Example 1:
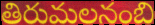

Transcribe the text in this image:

తిరుమలనంబి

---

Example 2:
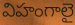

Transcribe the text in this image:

విహంగాలై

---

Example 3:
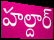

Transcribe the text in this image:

హల్దార్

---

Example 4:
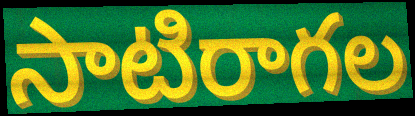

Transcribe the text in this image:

సాటిరాగల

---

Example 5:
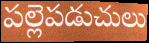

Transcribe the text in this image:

పల్లెపడుచులు